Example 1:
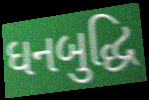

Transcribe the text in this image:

ધનબુદ્ધિ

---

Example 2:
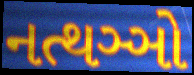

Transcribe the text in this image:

નત્થઞ્ઞો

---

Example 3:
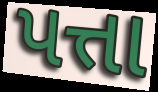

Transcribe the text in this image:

પત્તા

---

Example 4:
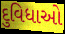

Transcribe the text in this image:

દુવિધાઓ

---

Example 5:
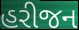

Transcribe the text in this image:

હરીજન